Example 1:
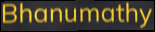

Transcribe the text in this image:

Bhanumathy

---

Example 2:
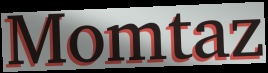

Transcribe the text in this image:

Momtaz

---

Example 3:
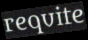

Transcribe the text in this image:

requite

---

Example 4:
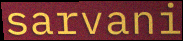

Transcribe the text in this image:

sarvani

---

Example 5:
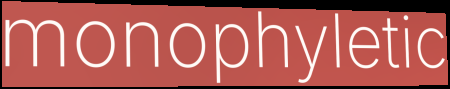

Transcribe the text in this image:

monophyletic